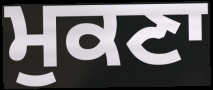
ਮੁਕਣਾ